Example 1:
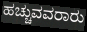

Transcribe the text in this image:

ಹಚ್ಚುವವರಾರು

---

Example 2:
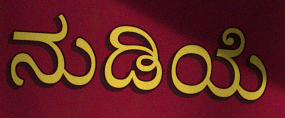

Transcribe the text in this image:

ನುಡಿಯೆ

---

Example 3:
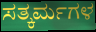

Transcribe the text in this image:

ಸತ್ಕರ್ಮಗಳ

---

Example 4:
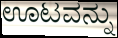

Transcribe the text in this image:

ಊಟವನ್ನು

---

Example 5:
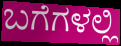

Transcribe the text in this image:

ಬಗೆಗಳಲ್ಲಿ